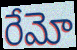
రేమో